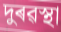
দুৰৱস্থা